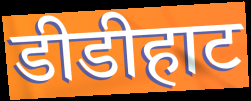
डीडीहाट